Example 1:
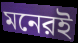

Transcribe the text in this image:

মনেরই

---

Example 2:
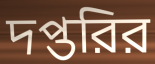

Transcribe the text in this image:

দপ্তরির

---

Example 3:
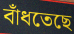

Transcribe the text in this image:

বাঁধতেছে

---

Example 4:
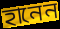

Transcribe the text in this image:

হানেন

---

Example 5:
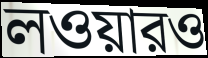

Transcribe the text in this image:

লওয়ারও